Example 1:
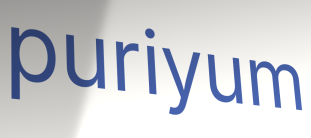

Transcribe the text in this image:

puriyum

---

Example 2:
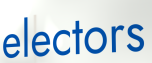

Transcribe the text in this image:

electors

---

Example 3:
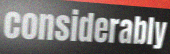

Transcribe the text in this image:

considerably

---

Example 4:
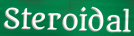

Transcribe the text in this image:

Steroidal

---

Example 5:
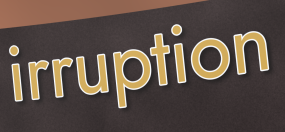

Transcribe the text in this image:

irruption